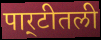
पार्टीतली